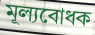
মূল্যবোধক